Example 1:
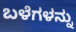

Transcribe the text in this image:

ಬಳೆಗಳನ್ನು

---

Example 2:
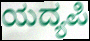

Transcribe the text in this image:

ಯದ್ಯಪಿ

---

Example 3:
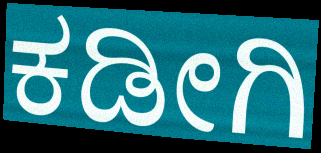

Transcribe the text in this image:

ಕಡೀಗಿ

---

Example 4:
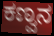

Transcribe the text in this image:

ಕಣ್ವನ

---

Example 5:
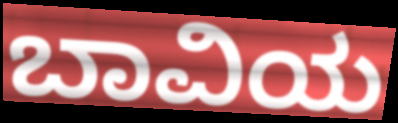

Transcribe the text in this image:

ಬಾವಿಯ